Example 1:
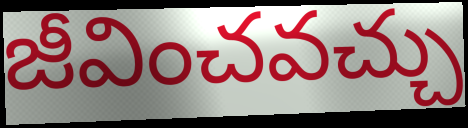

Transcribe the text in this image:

జీవించవచ్చు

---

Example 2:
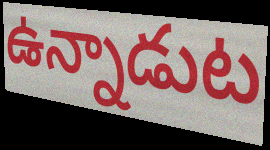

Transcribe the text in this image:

ఉన్నాడుట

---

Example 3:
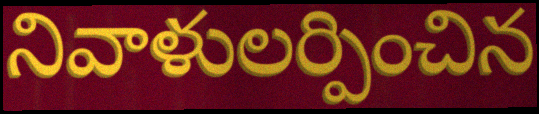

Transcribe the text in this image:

నివాళులర్పించిన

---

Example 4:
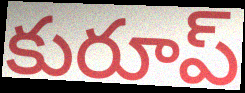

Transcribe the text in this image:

కురూప్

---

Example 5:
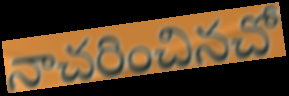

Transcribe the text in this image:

నాచరించినచో